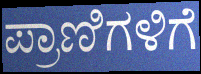
ಪ್ರಾಣಿಗಳಿಗೆ